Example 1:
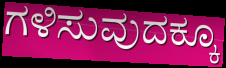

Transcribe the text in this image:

ಗಳಿಸುವುದಕ್ಕೂ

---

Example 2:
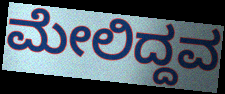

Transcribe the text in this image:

ಮೇಲಿದ್ದವ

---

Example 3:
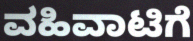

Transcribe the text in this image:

ವಹಿವಾಟಿಗೆ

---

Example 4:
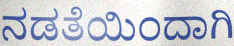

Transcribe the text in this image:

ನಡತೆಯಿಂದಾಗಿ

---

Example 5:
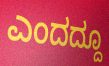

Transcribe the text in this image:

ಎಂದದ್ದೂ